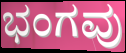
ಭಂಗವು